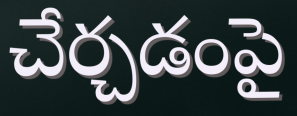
చేర్చడంపై